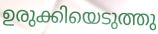
ഉരുക്കിയെടുത്തു